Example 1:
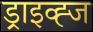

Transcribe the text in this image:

ड्राइव्ह्ज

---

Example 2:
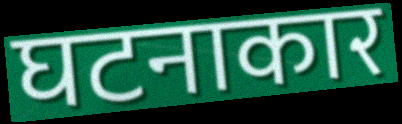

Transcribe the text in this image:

घटनाकार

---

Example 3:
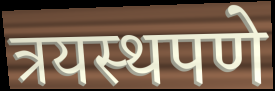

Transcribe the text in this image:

त्रयस्थपणे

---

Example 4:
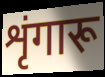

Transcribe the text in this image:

शृंगारू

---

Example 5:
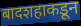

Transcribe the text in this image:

बादशहाकडून